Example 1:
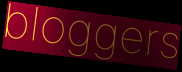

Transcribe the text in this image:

bloggers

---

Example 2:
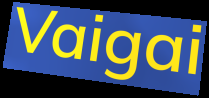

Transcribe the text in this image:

Vaigai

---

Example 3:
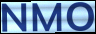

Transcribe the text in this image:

NMO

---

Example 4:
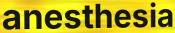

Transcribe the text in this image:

anesthesia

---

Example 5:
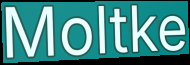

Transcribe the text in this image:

Moltke